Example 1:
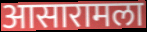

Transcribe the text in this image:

आसारामला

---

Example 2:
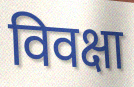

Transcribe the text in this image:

विवक्षा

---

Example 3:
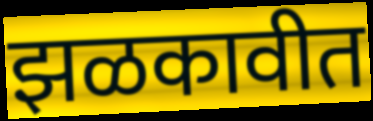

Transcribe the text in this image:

झळकावीत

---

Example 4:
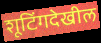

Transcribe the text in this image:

शूटिंगदेखील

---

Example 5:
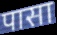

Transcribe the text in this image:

पासा